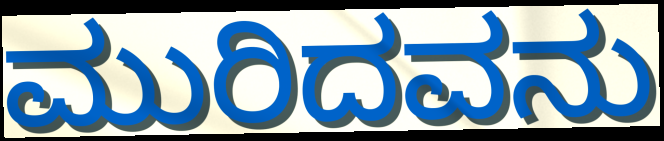
ಮುರಿದವನು